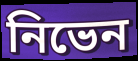
নিভেন